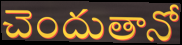
చెందుతానో